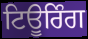
ਟਿਊਰਿੰਗ